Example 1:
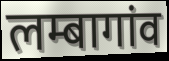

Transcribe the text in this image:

लम्बागांव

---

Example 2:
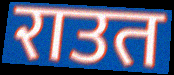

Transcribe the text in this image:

राउत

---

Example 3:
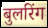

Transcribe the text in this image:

बुलरिंग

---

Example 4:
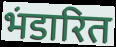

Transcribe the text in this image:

भंडारित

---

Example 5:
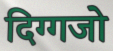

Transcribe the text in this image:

दिग्गजो